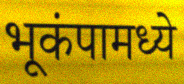
भूकंपामध्ये